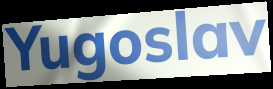
Yugoslav